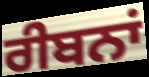
ਰੀਬਨਾਂ